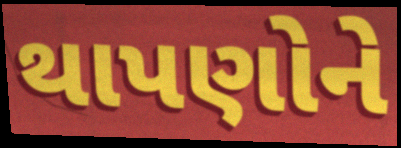
થાપણોને